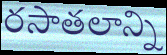
రసాతలాన్ని